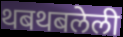
थबथबलेली